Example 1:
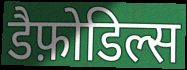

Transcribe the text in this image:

डैफ़ोडिल्स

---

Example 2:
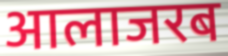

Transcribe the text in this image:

आलाजरब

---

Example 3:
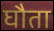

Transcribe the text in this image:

घौता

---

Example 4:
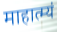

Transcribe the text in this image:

माहात्म्यं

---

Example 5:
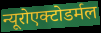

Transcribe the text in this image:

न्यूरोएक्टोडर्मल